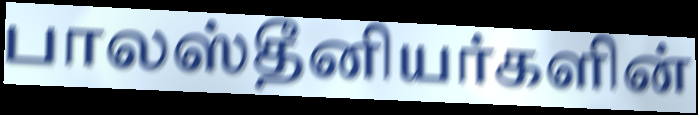
பாலஸ்தீனியர்களின்